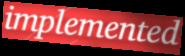
implemented